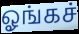
ஓங்கச்